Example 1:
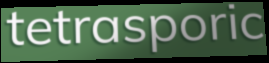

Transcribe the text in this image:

tetrasporic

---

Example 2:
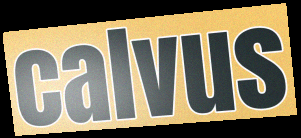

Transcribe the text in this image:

calvus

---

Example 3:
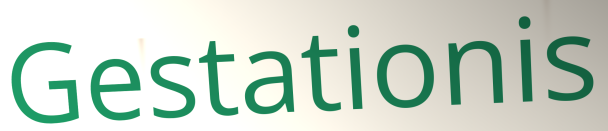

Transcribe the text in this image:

Gestationis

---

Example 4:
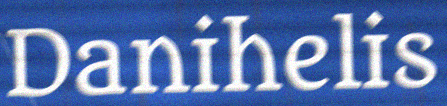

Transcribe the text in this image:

Danihelis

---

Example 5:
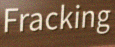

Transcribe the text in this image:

Fracking